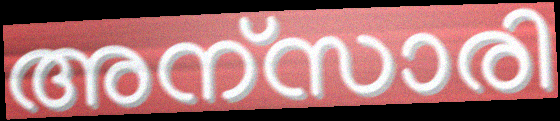
അന്സാരി